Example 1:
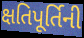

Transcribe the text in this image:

ક્ષતિપૂર્તિની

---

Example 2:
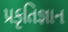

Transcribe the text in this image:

પ્રકૃતિજ્ઞાન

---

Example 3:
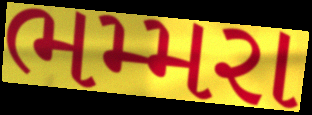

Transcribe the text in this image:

ભમ્મરા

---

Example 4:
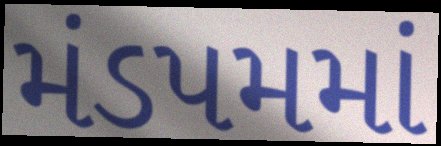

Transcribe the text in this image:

મંડપમમાં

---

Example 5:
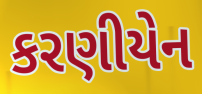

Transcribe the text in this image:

કરણીયેન